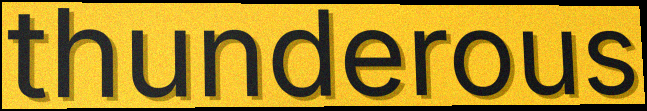
thunderous